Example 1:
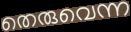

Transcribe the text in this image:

തെരുവെന്ന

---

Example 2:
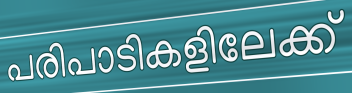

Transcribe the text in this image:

പരിപാടികളിലേക്ക്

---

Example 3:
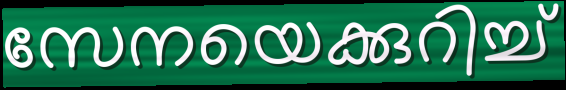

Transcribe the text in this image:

സേനയെക്കുറിച്ച്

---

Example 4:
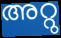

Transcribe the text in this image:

അറ്റു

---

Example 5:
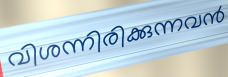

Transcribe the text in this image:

വിശന്നിരിക്കുന്നവൻ